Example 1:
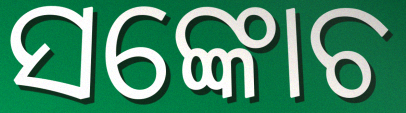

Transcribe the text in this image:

ସଙ୍କୋଚ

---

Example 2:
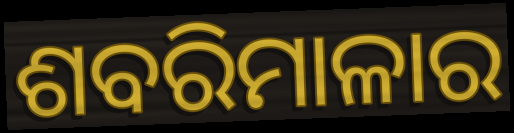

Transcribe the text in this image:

ଶବରିମାଳାର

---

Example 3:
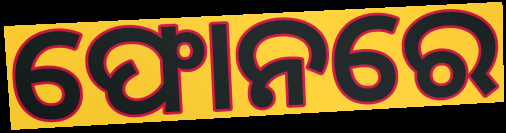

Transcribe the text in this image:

ଫୋନରେ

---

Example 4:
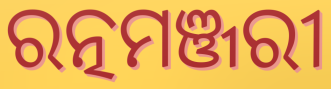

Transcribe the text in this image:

ରତ୍ନମଞ୍ଜରୀ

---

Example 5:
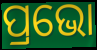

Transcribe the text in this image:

ପ୍ରଭୋ